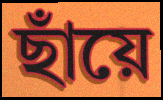
ছাঁয়ে